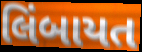
લિંબાયત